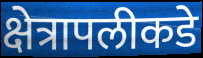
क्षेत्रापलीकडे